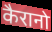
कैरानो